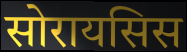
सोरायसिस